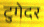
टुगेदर